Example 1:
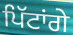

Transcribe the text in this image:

ਪਿੱਟਾਂਗੇ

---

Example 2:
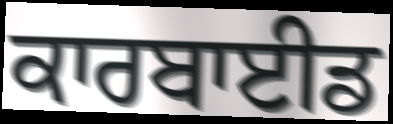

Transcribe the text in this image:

ਕਾਰਬਾਈਡ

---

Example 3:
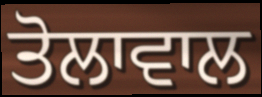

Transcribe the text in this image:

ਤੋਲਾਵਾਲ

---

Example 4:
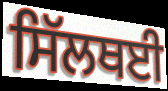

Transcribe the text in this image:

ਸਿੱਲਥਈ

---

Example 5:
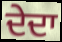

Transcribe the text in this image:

ਦੇਦਾ